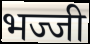
भज्जी